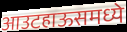
आउटहाऊसमध्ये